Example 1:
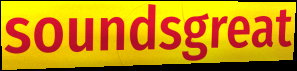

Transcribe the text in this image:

soundsgreat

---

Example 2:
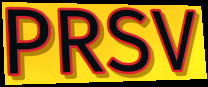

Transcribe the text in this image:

PRSV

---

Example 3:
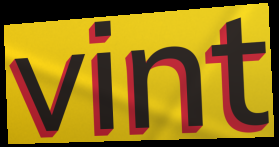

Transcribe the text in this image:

vint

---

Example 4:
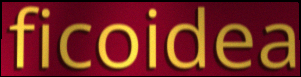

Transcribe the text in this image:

ficoidea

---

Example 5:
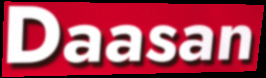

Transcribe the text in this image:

Daasan